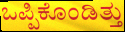
ಒಪ್ಪಿಕೊಂಡಿತ್ತು